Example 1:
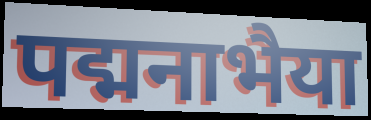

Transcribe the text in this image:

पद्मनाभैया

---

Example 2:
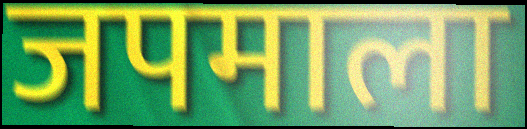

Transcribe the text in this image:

जपमाला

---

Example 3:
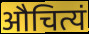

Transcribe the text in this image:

औचित्यं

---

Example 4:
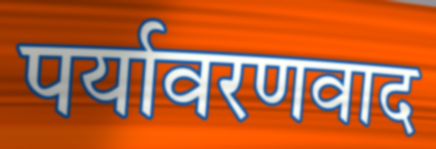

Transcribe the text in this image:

पर्यावरणवाद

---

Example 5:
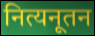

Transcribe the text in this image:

नित्यनूतन